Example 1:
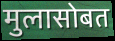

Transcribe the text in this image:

मुलासोबत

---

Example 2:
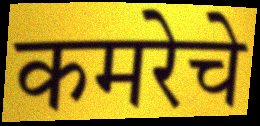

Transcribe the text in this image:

कमरेचे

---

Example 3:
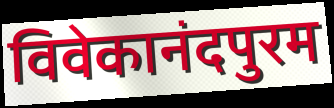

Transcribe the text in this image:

विवेकानंदपुरम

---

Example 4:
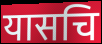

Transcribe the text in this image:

यासचि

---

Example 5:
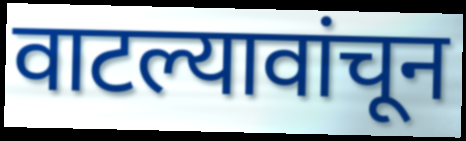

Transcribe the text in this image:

वाटल्यावांचून